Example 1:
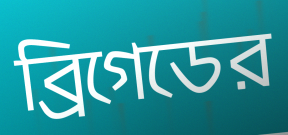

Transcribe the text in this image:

ব্রিগেডের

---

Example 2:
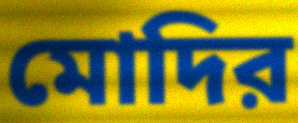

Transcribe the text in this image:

মোদির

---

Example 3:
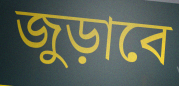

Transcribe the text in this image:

জুড়াবে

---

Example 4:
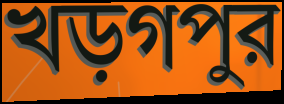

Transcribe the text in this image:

খড়গপুর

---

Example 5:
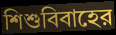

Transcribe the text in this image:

শিশুবিবাহের